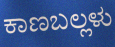
ಕಾಣಬಲ್ಲಳು